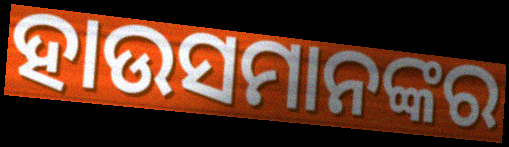
ହାଉସମାନଙ୍କର